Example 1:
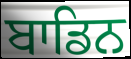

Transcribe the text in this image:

ਬਾਡਿਨ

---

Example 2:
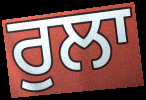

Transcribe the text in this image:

ਰੁਲਾ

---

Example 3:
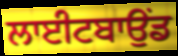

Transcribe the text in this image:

ਲਾਈਟਬਾਉਂਡ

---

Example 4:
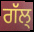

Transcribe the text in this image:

ਗੱਲ੍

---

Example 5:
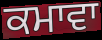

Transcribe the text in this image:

ਕਮਾਵਾ